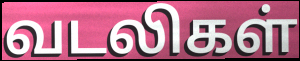
வடலிகள்